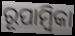
ରୂପାମ୍ୱିକା